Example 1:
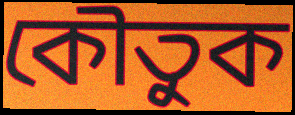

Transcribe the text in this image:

কৌতুক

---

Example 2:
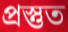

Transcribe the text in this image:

প্রস্তুত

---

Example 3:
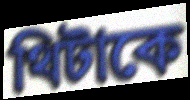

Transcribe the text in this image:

থিটাকে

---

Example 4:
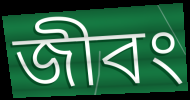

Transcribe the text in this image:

জীবং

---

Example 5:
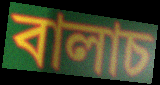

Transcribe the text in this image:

বালাচ